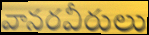
వానరవీరులు